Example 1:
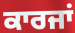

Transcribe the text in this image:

ਕਾਰਜਾਂ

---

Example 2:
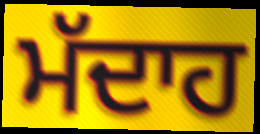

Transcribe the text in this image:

ਮੱਦਾਹ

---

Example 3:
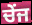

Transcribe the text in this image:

ਚੇਂਜ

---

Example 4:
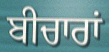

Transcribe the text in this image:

ਬੀਚਾਰਾਂ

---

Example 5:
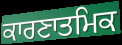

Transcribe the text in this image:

ਕਾਰਣਾਤਮਿਕ